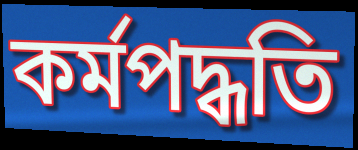
কর্মপদ্ধতি